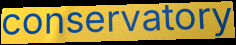
conservatory